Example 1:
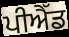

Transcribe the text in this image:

ਪੀਐੱਡ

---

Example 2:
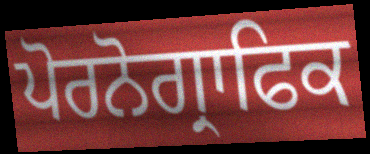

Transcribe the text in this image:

ਪੋਰਨੋਗ੍ਰਾਫਿਕ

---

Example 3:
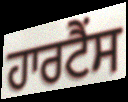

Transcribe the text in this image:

ਹਾਰਟੈਂਸ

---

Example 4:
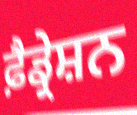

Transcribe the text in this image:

ਫ਼ੈਡ੍ਰੇਸ਼ਨ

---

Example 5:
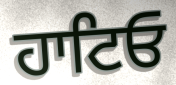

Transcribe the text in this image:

ਹਾਟਿਓ